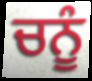
ਚਨੂੰ